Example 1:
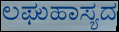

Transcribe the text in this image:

ಲಘುಹಾಸ್ಯದ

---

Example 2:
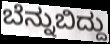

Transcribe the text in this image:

ಬೆನ್ನುಬಿದ್ದು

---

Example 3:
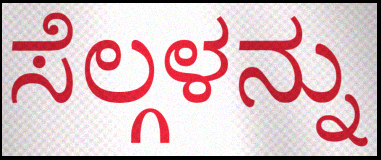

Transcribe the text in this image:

ಸೆಲ್ಗಳನ್ನು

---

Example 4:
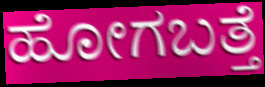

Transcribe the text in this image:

ಹೋಗಬತ್ತೆ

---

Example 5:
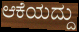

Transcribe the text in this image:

ಆಕೆಯದ್ದು